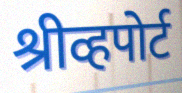
श्रीव्हपोर्ट